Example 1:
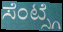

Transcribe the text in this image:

ಸೆಂಟ್ಸ್ಗೆ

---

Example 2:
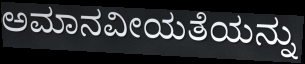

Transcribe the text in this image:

ಅಮಾನವೀಯತೆಯನ್ನು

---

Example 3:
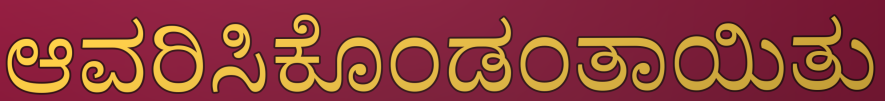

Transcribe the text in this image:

ಆವರಿಸಿಕೊಂಡಂತಾಯಿತು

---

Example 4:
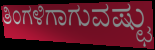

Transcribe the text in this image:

ತಿಂಗಳಿಗಾಗುವಷ್ಟು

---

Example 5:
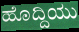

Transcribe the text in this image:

ಹೊದ್ದಿಯು